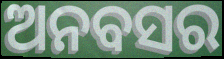
ଅନବସର